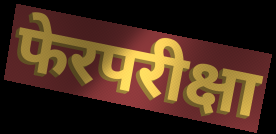
फेरपरीक्षा